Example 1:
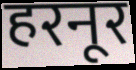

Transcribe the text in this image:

हरनूर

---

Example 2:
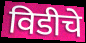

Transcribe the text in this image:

विडीचे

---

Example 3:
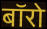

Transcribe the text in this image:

बॉरो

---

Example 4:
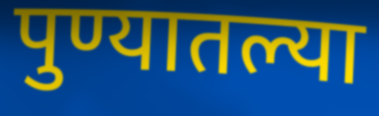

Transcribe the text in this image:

पुण्यातल्या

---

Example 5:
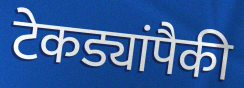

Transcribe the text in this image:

टेकड्यांपैकी